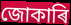
জোকাৰি